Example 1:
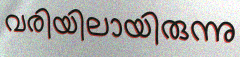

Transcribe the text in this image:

വരിയിലായിരുന്നു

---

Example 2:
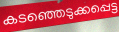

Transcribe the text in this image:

കടഞ്ഞെടുക്കപ്പെട്ട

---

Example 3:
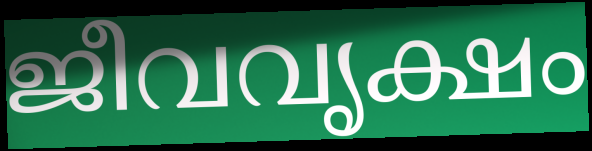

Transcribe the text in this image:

ജീവവൃക്ഷം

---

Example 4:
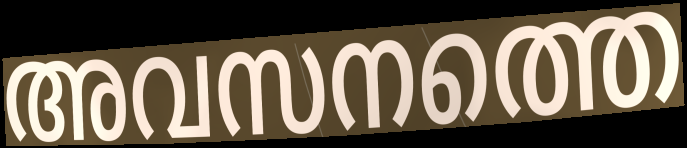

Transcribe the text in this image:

അവസനത്തെ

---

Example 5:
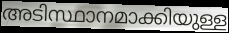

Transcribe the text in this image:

അടിസ്ഥാനമാക്കിയുള്ള